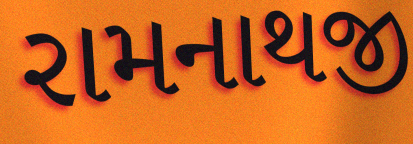
રામનાથજી